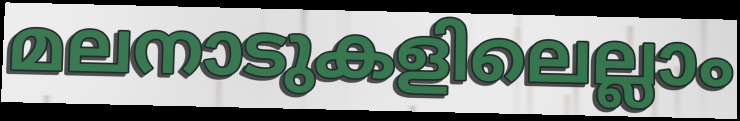
മലനാടുകളിലെല്ലാം